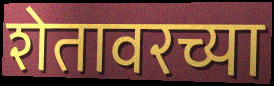
शेतावरच्या